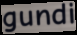
gundi